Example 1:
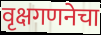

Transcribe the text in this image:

वृक्षगणनेचा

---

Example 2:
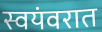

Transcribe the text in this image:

स्वयंवरात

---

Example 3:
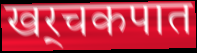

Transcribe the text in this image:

खर्चकपात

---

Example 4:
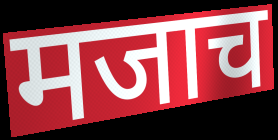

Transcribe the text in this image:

मजाच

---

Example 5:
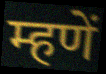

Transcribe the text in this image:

म्हणें